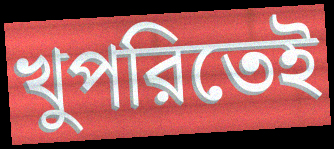
খুপরিতেই